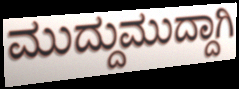
ಮುದ್ದುಮುದ್ದಾಗಿ